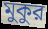
মুকুর